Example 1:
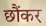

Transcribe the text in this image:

छौंकर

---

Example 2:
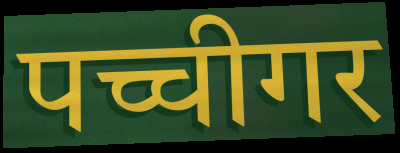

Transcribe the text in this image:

पच्चीगर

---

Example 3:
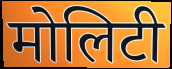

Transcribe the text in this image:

मोलिटी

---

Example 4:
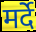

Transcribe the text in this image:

मर्दे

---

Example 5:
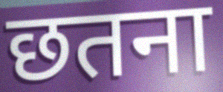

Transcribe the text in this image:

छतना